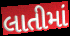
લાતીમાં